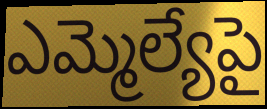
ఎమ్మెల్యేపై